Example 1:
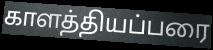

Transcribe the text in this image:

காளத்தியப்பரை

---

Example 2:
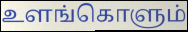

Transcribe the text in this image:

உளங்கொளும்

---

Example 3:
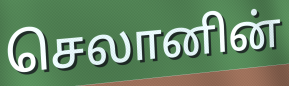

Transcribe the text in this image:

செலானின்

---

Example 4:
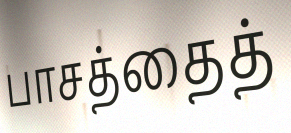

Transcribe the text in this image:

பாசத்தைத்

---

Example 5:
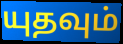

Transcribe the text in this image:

யுதவும்